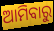
ଆମିବାରୁ